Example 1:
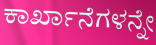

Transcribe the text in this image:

ಕಾರ್ಖಾನೆಗಳನ್ನೇ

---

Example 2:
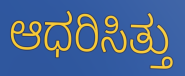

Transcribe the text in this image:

ಆಧರಿಸಿತ್ತು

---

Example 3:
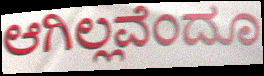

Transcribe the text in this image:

ಆಗಿಲ್ಲವೆಂದೂ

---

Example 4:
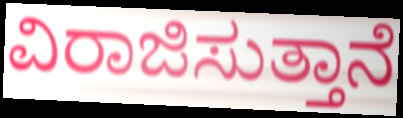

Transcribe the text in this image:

ವಿರಾಜಿಸುತ್ತಾನೆ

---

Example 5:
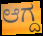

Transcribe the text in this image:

ಆಗ್ದ